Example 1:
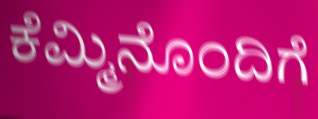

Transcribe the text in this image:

ಕೆಮ್ಮಿನೊಂದಿಗೆ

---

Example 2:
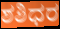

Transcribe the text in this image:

ಶಶಿಧರ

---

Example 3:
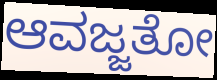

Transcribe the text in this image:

ಆವಜ್ಜತೋ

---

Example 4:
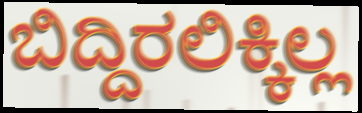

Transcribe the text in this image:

ಬಿದ್ದಿರಲಿಕ್ಕಿಲ್ಲ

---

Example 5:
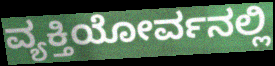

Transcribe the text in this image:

ವ್ಯಕ್ತಿಯೋರ್ವನಲ್ಲಿ